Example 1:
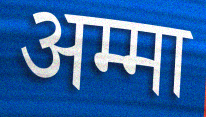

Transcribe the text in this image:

अम्मा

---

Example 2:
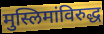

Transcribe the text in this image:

मुस्लिमांविरुद्ध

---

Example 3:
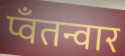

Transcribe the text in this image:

प्वॅंतन्वार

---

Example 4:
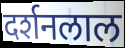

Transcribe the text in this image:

दर्शनलाल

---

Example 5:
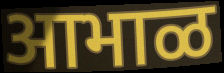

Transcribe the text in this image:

आभाळ